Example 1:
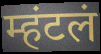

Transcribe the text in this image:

म्हंटलं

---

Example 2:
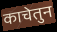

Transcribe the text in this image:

काचेतुन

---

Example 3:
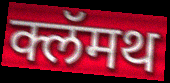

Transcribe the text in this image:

क्लॅमथ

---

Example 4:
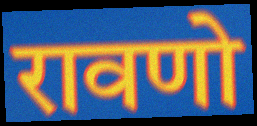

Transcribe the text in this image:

रावणो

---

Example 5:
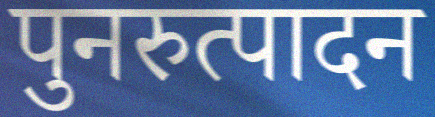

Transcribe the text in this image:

पुनरुत्पादन